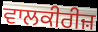
ਵਾਲਕੀਰੀਜ਼